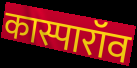
कास्पारॉव